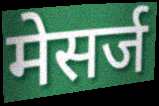
मेसर्ज